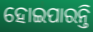
ହୋଇପାରନ୍ତି